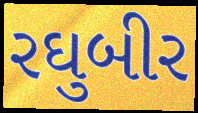
રઘુબીર